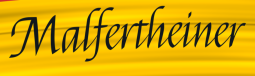
Malfertheiner